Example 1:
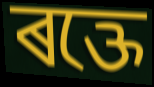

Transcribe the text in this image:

ৰক্তে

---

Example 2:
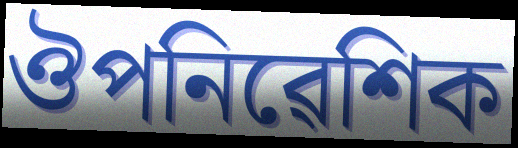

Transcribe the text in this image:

ঔপনিৱেশিক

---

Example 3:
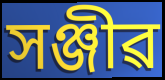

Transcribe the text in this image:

সঞ্জীৱ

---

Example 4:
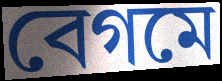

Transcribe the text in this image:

বেগমে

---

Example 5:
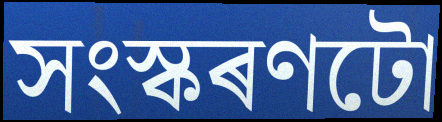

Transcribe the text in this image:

সংস্কৰণটো